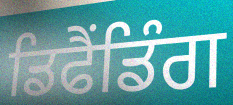
ਡਿਫੈਂਡਿੰਗ